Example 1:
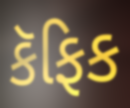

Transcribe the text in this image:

કૅફિક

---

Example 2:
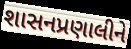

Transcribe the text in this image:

શાસનપ્રણાલીને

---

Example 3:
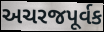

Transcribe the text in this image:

અચરજપૂર્વક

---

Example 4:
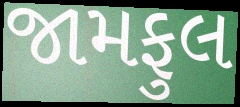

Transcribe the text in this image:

જામફુલ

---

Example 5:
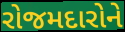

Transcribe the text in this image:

રોજમદારોને